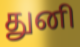
துனி